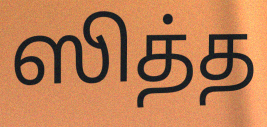
ஸித்த